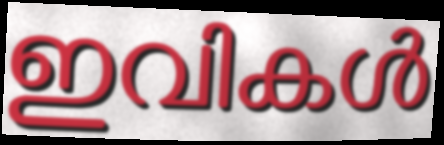
ഇവികൾ